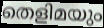
തെളിമയും